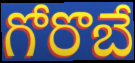
గోరొబే